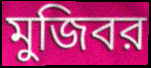
মুজিবর